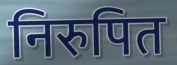
निरुपित